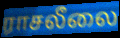
ராசலீலை